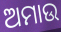
ଅମାଉ